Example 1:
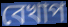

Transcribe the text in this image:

বেখাপ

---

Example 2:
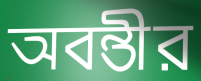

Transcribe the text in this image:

অবন্তীর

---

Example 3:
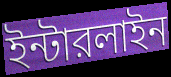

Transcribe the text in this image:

ইন্টারলাইন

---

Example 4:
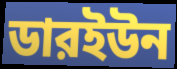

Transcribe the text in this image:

ডারইউন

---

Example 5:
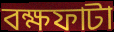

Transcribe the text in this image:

বক্ষফাটা